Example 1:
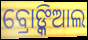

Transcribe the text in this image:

ବ୍ରୋଙ୍କିଆଲ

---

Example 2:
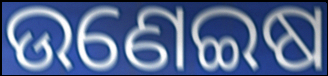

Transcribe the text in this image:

ଉଣେଇଷ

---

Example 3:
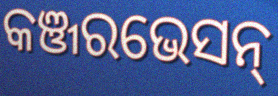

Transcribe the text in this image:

କଞ୍ଜରଭେସନ୍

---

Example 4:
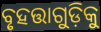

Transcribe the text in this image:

ବୃହତ୍ତାଗୁଡ଼ିକୁ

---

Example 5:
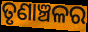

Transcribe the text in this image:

ତୃଣାଞ୍ଚଳର